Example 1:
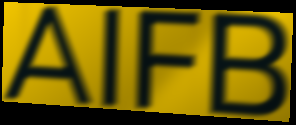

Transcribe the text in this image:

AIFB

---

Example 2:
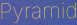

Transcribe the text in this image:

Pyramid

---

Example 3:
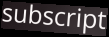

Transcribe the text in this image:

subscript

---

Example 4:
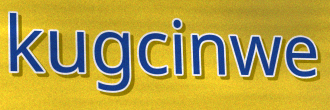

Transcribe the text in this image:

kugcinwe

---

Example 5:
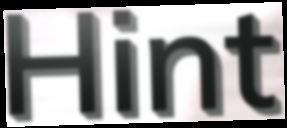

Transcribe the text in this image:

Hint